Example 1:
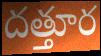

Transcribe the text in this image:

దత్తూర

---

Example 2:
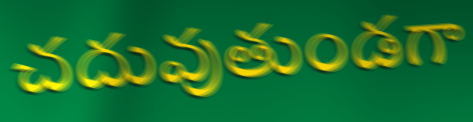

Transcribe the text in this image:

చదువుతుండగా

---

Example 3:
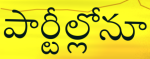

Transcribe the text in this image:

పార్టీల్లోనూ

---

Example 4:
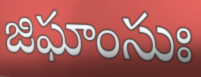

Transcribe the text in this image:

జిఘాంసుః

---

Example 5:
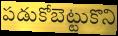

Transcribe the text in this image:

పడుకోబెట్టుకొని